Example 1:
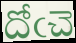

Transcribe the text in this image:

దోఁచె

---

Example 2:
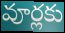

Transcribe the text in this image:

వూర్లకు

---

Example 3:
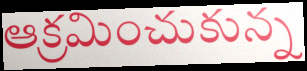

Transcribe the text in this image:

ఆక్రమించుకున్న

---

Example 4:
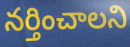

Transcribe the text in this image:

నర్తించాలని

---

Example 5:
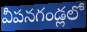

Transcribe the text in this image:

వీపనగండ్లలో